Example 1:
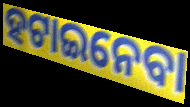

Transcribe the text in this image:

ହଟାଇନେବା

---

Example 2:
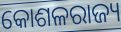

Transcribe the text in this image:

କୋଶଳରାଜ୍ୟ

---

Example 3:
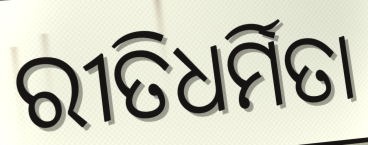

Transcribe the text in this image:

ରୀତିଧର୍ମିତା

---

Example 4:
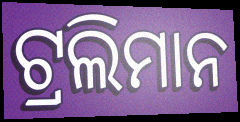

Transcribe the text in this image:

ଟ୍ରଲିମାନ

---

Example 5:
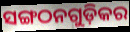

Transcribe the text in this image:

ସଙ୍ଗଠନଗୁଡ଼ିକର